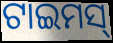
ଟାଇମସ୍